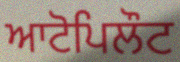
ਆਟੋਪਿਲੌਟ